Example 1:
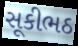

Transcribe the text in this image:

સૂકીભઠ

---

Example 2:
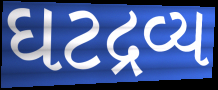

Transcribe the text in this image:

ઘટદ્રવ્ય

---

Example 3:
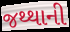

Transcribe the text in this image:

જથ્થાની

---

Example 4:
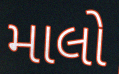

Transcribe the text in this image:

માલો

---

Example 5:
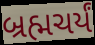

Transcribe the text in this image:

બ્રહ્મચર્યં